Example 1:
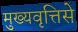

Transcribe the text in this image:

मुख्यवृत्तिसे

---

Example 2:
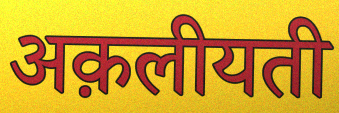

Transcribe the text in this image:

अक़लीयती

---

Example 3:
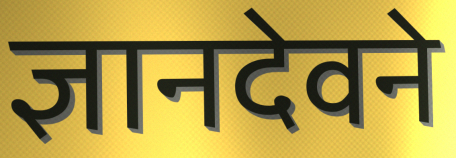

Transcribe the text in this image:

ज्ञानदेवने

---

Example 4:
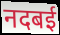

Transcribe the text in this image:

नदबई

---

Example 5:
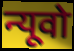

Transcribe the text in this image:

न्यूवो